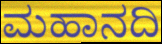
ಮಹಾನದಿ